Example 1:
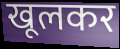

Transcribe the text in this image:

खूलकर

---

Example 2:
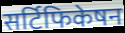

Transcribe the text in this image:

सर्टिफिकेषन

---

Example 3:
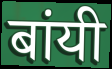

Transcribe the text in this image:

बांयी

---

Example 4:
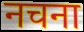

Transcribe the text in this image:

नचना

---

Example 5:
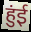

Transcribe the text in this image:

हुंई